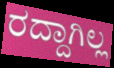
ರದ್ದಾಗಿಲ್ಲ